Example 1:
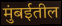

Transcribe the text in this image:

मुंबईतील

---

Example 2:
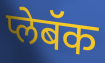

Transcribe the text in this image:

प्लेबॅक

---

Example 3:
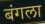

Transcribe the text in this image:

बंगला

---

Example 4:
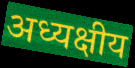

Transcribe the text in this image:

अध्यक्षीय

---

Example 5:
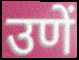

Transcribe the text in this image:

उणें